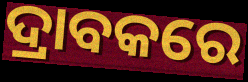
ଦ୍ରାବକରେ